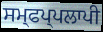
ਸਮ੍ਫਪ੍ਪਲਾਪੀ